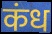
कंध